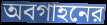
অবগাহনের